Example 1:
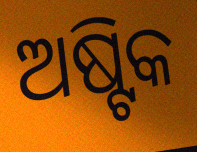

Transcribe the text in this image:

ଅଷ୍ଟିକ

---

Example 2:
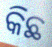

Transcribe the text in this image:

କିଛ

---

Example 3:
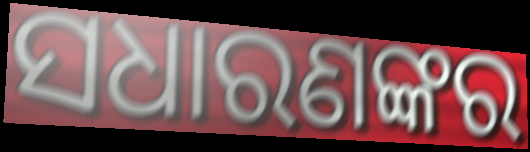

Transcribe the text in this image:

ସଧାରଣଙ୍କର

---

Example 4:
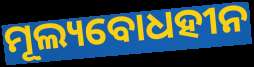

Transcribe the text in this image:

ମୂଲ୍ୟବୋଧହୀନ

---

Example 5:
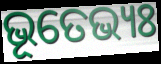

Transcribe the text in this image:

ଭୂତେଭ୍ୟଃ